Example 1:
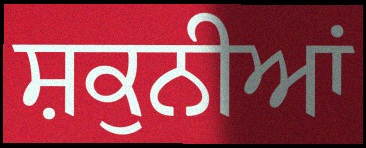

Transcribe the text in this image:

ਸ਼ਕੁਨੀਆਂ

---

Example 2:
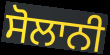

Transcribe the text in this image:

ਸੋਲਾਨੀ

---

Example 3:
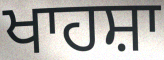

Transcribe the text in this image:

ਖਾਹਸ਼ਾ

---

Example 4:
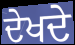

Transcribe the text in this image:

ਦੇਖਦੇ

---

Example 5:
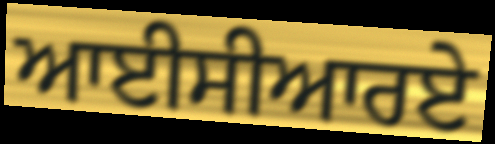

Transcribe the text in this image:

ਆਈਸੀਆਰਏ